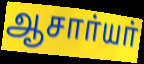
ஆசார்யர்